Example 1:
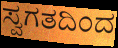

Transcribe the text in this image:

ಸ್ವಗತದಿಂದ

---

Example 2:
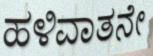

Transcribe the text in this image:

ಹಳಿವಾತನೇ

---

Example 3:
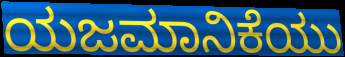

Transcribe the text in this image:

ಯಜಮಾನಿಕೆಯು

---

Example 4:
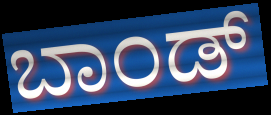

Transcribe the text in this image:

ಬಾಂಡ್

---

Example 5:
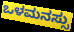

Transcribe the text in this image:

ಒಳಮನಸ್ಸು